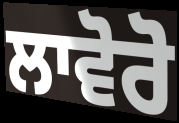
ਲਾਵੋਰੋ